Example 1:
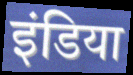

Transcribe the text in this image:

इंडिया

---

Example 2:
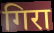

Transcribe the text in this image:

गिरा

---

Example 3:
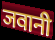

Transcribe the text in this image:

जवानी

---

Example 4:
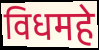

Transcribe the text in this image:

विधमहे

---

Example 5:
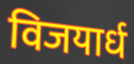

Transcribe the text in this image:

विजयार्ध